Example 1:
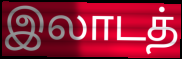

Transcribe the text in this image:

இலாடத்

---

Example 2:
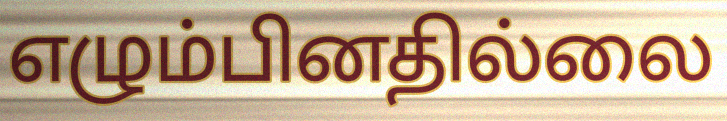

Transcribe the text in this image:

எழும்பினதில்லை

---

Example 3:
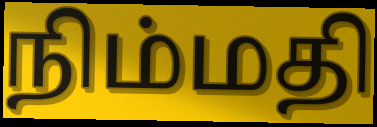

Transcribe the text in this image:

நிம்மதி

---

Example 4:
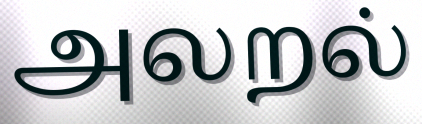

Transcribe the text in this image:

அலறல்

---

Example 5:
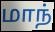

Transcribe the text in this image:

மாந்